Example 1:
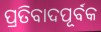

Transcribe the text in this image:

ପ୍ରତିବାଦପୂର୍ବକ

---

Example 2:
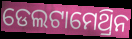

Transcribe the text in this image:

ଡେଲଟାମେଥ୍ରିନ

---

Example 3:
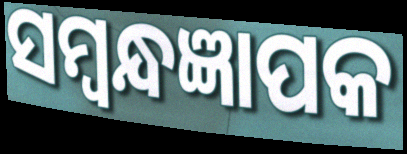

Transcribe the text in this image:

ସମ୍ବନ୍ଧଜ୍ଞାପକ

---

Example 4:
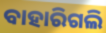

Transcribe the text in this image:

ବାହାରିଗଲି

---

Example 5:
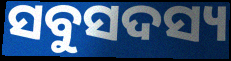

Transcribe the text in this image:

ସବୁସଦସ୍ୟ